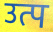
उत्प